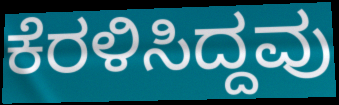
ಕೆರಳಿಸಿದ್ದವು